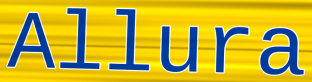
Allura